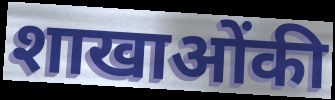
शाखाओंकी